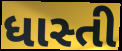
ધાસ્તી